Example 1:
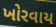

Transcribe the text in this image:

ખોરવાય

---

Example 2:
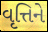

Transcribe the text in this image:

વૃત્તિને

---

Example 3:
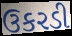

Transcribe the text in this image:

ઉકરડી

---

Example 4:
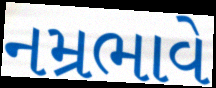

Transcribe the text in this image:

નમ્રભાવે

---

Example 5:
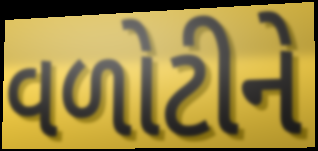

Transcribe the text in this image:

વળોટીને